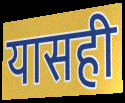
यासही